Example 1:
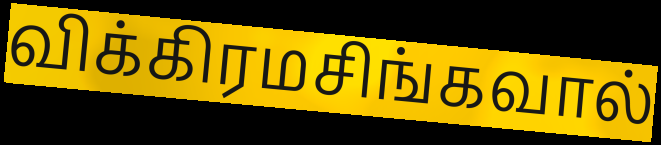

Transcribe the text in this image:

விக்கிரமசிங்கவால்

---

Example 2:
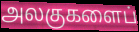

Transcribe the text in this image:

அலகுகளைப்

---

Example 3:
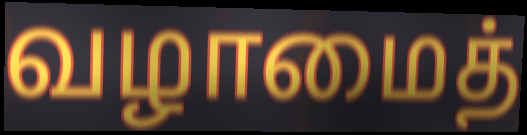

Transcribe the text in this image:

வழாமைத்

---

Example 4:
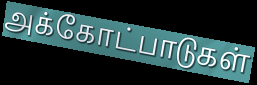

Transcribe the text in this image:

அக்கோட்பாடுகள்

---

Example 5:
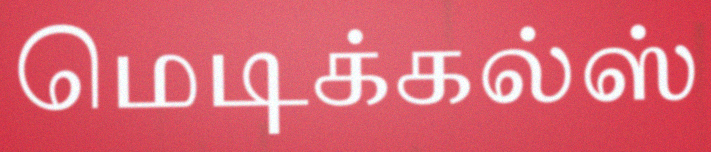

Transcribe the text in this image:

மெடிக்கல்ஸ்